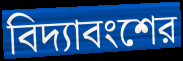
বিদ্যাবংশের